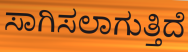
ಸಾಗಿಸಲಾಗುತ್ತಿದೆ